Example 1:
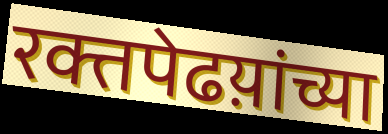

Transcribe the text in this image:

रक्तपेढय़ांच्या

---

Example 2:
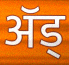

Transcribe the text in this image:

ॲड्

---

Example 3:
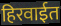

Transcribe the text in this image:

हिरवाईत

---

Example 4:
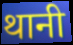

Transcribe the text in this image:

थानी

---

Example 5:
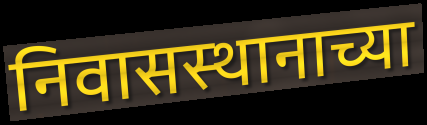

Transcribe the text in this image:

निवासस्थानाच्या